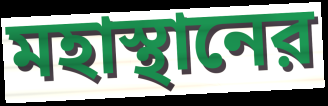
মহাস্থানের